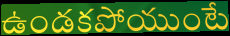
ఉండకపోయుంటే